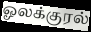
ஓலக்குரல்